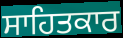
ਸਾਹਿਤਕਾਰ